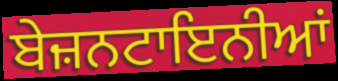
ਬੇਜ਼ਨਟਾਇਨੀਆਂ